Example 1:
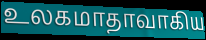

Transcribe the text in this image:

உலகமாதாவாகிய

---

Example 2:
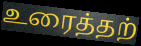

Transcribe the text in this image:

உரைத்தற்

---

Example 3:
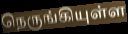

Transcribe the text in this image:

நெருங்கியுள்ள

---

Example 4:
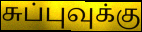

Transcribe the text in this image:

சுப்புவுக்கு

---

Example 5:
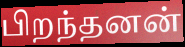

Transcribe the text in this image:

பிறந்தனன்